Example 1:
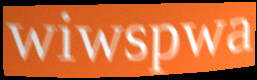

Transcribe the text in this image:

wiwspwa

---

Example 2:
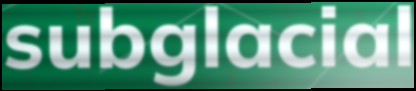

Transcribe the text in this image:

subglacial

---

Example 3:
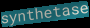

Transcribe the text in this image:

synthetase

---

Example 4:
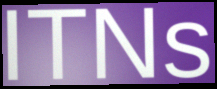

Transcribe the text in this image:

ITNs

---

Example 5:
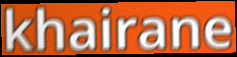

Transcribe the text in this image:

khairane